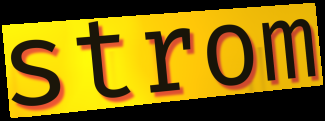
strom